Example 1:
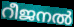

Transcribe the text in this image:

റീജനൽ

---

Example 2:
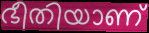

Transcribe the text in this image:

ഭീതിയാണ്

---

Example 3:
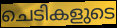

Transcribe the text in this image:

ചെടികളുടെ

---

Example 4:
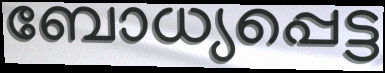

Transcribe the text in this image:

ബോധ്യപ്പെട്ട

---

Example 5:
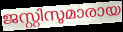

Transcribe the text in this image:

ജസ്റ്റിസുമാരായ